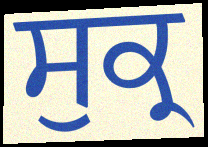
ਸੁਕ੍ਰ